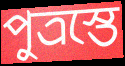
পুত্রস্তে